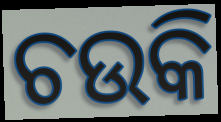
ଚଉକି